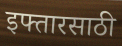
इफ्तारसाठी